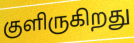
குளிருகிறது